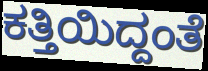
ಕತ್ತಿಯಿದ್ದಂತೆ